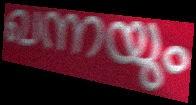
ഖന്നയും